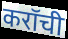
करॉची